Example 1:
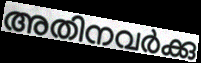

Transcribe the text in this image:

അതിനവർക്കു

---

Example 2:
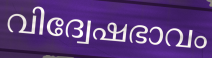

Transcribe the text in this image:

വിദ്വേഷഭാവം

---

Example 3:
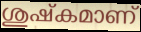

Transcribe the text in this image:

ശുഷ്‌കമാണ്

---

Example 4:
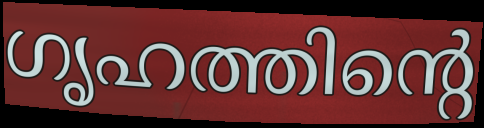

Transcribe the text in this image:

ഗൃഹത്തിന്റെ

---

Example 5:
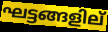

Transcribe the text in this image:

ഘട്ടങ്ങളില്